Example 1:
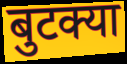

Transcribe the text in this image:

बुटक्या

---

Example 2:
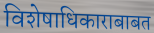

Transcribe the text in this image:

विशेषाधिकाराबाबत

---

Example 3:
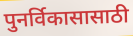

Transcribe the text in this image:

पुनर्विकासासाठी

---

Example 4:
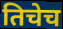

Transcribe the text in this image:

तिचेच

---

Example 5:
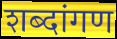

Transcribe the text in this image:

शब्दांगण